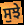
ਸੁਝੇ